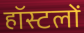
हॉस्टलों